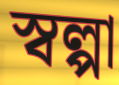
স্বল্পা